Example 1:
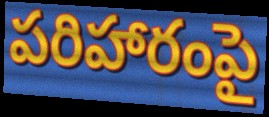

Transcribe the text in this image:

పరిహారంపై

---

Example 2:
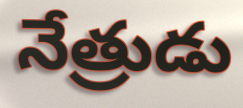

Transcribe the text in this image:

నేత్రుడు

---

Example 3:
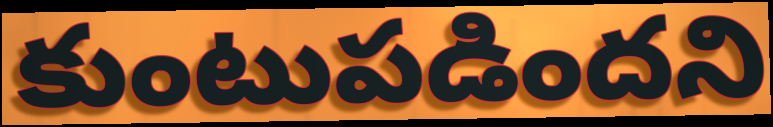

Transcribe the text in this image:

కుంటుపడిందని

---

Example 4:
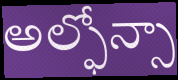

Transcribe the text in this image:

అల్ఫోన్సా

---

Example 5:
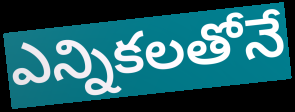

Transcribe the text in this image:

ఎన్నికలతోనే